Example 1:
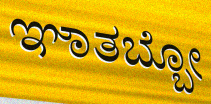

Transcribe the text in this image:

ಞಾತಬ್ಬೋ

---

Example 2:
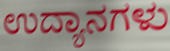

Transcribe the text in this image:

ಉದ್ಯಾನಗಳು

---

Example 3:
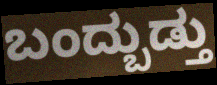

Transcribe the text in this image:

ಬಂದ್ಬುಡ್ತು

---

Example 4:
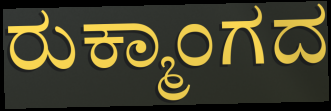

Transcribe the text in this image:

ರುಕ್ಮಾಂಗದ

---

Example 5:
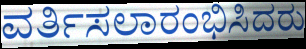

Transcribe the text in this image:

ವರ್ತಿಸಲಾರಂಭಿಸಿದರು